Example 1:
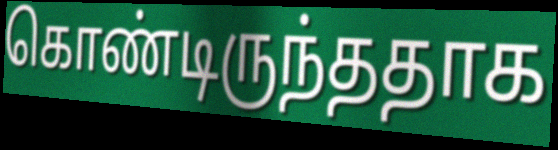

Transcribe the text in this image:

கொண்டிருந்ததாக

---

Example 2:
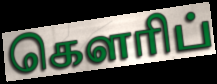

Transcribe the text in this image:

கௌரிப்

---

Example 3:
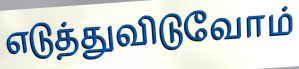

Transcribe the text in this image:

எடுத்துவிடுவோம்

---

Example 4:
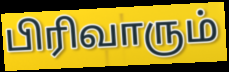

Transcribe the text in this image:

பிரிவாரும்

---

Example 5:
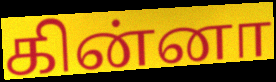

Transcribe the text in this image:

கின்னா